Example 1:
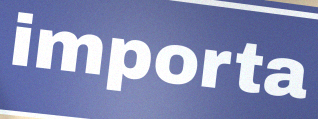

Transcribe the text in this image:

importa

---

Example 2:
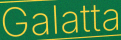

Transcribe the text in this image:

Galatta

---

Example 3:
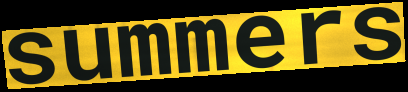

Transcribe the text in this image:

summers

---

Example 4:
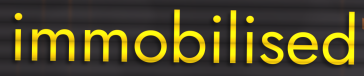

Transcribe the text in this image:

immobilised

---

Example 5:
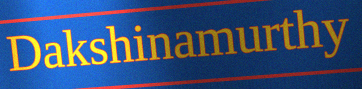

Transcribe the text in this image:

Dakshinamurthy